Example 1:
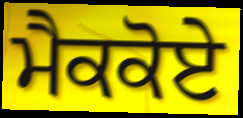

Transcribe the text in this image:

ਮੈਕਕੋਏ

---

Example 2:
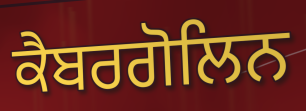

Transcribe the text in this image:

ਕੈਬਰਗੋਲਿਨ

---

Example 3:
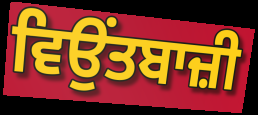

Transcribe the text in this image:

ਵਿਉਂਤਬਾਜ਼ੀ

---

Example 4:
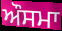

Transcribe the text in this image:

ਔਸਮਾ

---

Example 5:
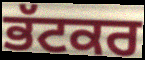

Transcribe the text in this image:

ਭੱਟਕਰ